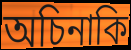
অচিনাকি